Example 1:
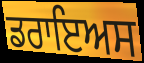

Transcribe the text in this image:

ਡਰਾਇਅਸ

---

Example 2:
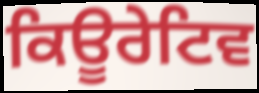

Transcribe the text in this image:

ਕਿਊਰੇਟਿਵ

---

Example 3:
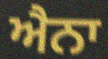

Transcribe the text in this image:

ਐਨਾ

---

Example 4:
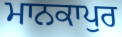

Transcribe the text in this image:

ਮਾਨਕਾਪੁਰ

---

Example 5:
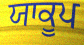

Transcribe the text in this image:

ਯਾਕੂਪ